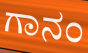
ಗಾನಂ